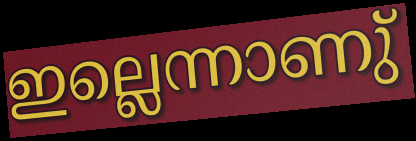
ഇല്ലെന്നാണു്